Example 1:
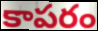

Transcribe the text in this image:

కాపరం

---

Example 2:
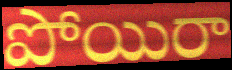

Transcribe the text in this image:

పోయిరా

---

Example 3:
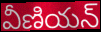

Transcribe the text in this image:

వీణియన్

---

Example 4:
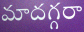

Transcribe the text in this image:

మాదగ్గరా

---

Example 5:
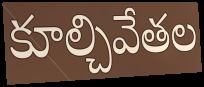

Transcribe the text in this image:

కూల్చివేతల